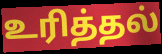
உரித்தல்